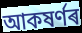
আকষৰ্ণৰ